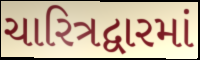
ચારિત્રદ્વારમાં